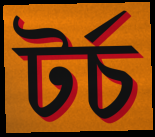
টৰ্চ